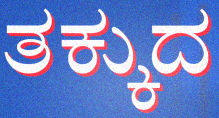
ತಕ್ಕುದ